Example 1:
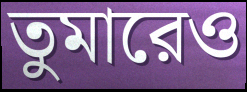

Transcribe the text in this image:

তুমারেও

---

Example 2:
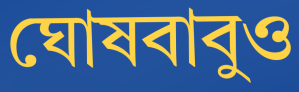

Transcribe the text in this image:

ঘোষবাবুও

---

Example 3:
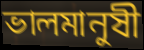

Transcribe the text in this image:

ভালমানুষী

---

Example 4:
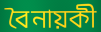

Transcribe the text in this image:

বৈনায়কী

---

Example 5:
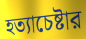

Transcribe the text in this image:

হত্যাচেষ্টার